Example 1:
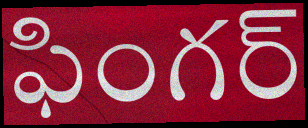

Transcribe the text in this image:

ఫింగర్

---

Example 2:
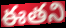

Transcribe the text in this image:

ఈతని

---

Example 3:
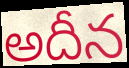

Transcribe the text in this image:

అదీన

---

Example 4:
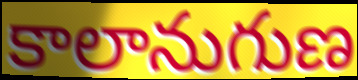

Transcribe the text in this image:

కాలానుగుణ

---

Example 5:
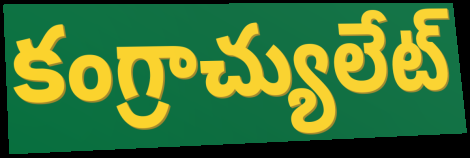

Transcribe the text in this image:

కంగ్రాచ్యులేట్